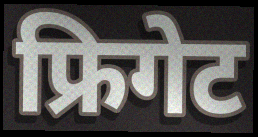
फ्रिगेट